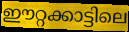
ഈറ്റക്കാട്ടിലെ